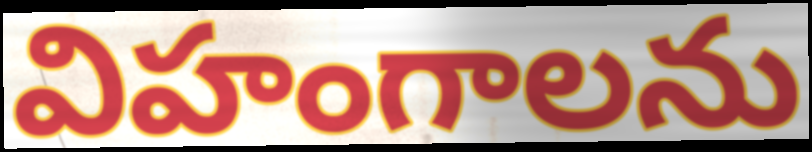
విహంగాలను